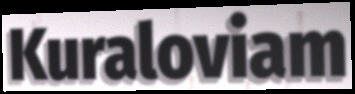
Kuraloviam